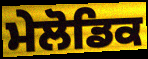
ਮੇਲੋਡਿਕ